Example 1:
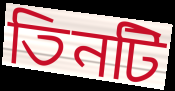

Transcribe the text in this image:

তিনটি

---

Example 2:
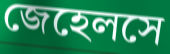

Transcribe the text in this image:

জেহেলসে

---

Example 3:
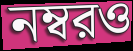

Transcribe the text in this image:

নম্বরও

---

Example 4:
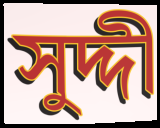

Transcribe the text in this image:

সুদ্দী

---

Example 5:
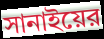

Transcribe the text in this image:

সানাইয়ের